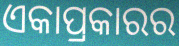
ଏକାପ୍ରକାରର